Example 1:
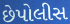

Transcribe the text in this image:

છેપોલીસ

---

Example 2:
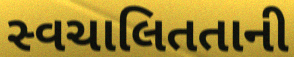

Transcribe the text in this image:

સ્વચાલિતતાની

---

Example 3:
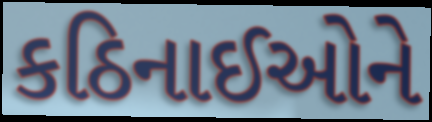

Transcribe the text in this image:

કઠિનાઈઓને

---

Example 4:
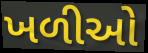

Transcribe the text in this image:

ખળીઓ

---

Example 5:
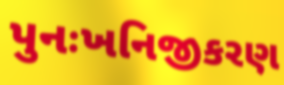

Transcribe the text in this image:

પુનઃખનિજીકરણ